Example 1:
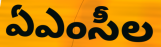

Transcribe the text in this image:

ఏఎంసీల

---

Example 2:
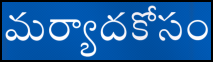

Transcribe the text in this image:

మర్యాదకోసం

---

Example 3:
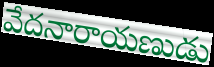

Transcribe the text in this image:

వేదనారాయణుడు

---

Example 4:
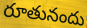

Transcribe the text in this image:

రూతునందు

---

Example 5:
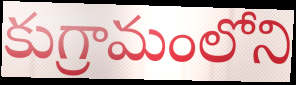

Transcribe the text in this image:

కుగ్రామంలోని